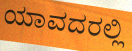
ಯಾವದರಲ್ಲಿ